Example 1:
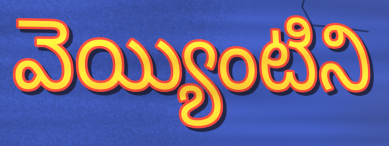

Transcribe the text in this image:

వెయ్యింటిని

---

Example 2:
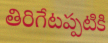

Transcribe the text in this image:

తిరిగేటప్పటికి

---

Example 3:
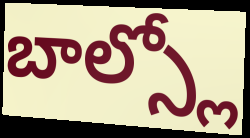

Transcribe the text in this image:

బాల్స్లో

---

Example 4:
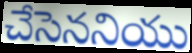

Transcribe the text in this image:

చేసెననియు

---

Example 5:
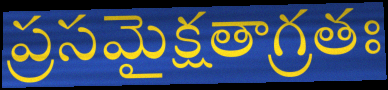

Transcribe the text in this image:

ప్రసమైక్షతాగ్రతః